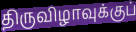
திருவிழாவுக்குப்